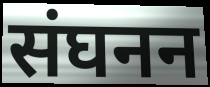
संघनन